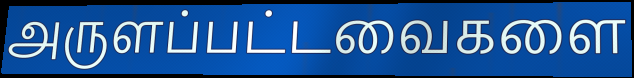
அருளப்பட்டவைகளை